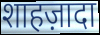
शाहज़ादा